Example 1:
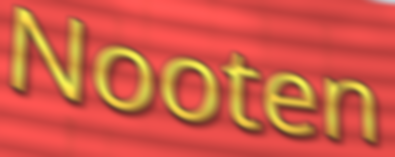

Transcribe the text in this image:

Nooten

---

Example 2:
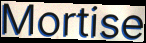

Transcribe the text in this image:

Mortise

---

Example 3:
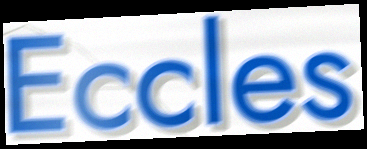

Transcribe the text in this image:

Eccles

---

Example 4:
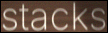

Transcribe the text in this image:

stacks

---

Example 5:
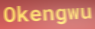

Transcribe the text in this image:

Okengwu